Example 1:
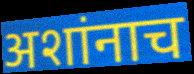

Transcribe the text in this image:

अशांनाच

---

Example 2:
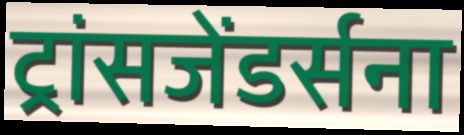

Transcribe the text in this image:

ट्रांसजेंडर्सना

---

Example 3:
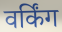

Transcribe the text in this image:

वर्किंग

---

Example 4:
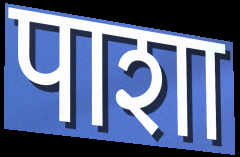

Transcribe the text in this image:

पाशा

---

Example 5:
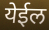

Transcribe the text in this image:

येईल